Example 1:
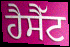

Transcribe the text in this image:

ਹੈਸੈੱਟ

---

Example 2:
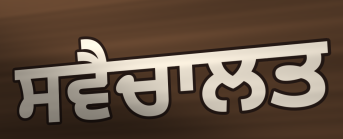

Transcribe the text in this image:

ਸਵੈਚਾਲਤ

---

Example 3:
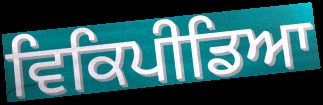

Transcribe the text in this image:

ਵਿਕਿਪੀਡਿਆ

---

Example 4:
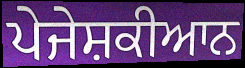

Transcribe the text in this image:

ਪੇਜੇਸ਼ਕੀਆਨ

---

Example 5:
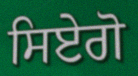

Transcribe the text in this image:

ਸਿਏਗੋ